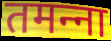
तमन्ना